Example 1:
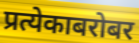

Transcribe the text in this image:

प्रत्येकाबरोबर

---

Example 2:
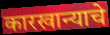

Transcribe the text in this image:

कारखान्याचे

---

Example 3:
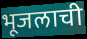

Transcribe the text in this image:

भूजलाची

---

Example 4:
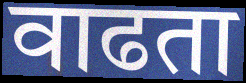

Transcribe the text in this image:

वाढता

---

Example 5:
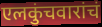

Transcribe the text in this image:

एलकुंचवारांचं